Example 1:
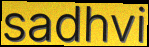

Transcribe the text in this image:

sadhvi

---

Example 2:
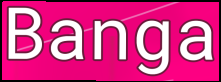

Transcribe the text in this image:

Banga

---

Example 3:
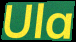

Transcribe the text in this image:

Ula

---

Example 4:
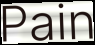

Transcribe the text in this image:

Pain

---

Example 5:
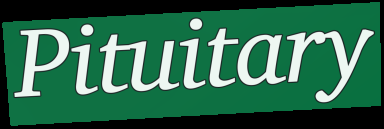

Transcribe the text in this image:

Pituitary